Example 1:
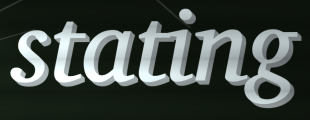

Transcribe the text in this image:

stating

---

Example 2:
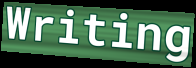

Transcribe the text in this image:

Writing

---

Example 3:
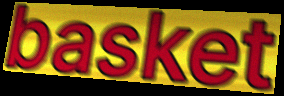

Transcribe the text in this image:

basket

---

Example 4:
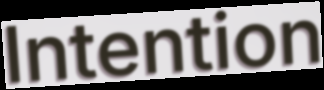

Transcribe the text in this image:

Intention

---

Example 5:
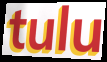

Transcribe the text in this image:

tulu